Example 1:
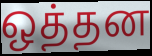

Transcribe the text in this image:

ஒத்தன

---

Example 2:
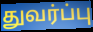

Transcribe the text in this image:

துவர்ப்பு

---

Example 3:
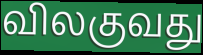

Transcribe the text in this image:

விலகுவது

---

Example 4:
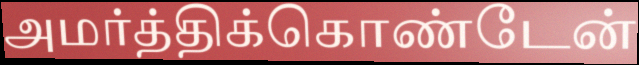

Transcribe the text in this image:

அமர்த்திக்கொண்டேன்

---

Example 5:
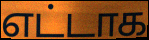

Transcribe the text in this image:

எட்டாக